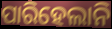
ପାରିହେଲାନି